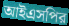
আইএসপির